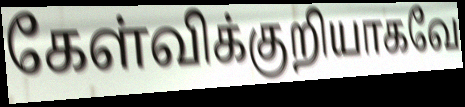
கேள்விக்குறியாகவே